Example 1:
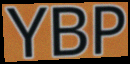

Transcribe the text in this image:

YBP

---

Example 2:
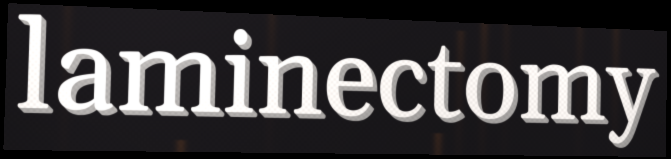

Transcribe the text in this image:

laminectomy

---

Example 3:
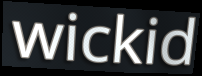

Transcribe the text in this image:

wickid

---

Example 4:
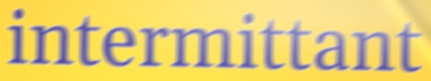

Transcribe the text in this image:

intermittant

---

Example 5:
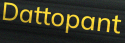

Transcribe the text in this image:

Dattopant